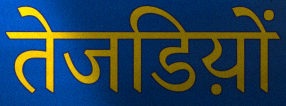
तेजडिय़ों